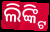
ଲିଙ୍କ୍ଟି